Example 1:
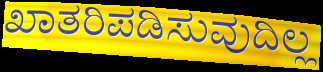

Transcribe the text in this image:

ಖಾತರಿಪಡಿಸುವುದಿಲ್ಲ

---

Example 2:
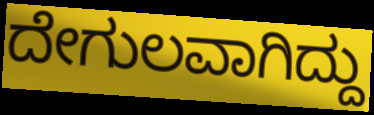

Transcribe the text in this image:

ದೇಗುಲವಾಗಿದ್ದು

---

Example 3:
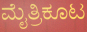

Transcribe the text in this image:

ಮೈತ್ರಿಕೂಟ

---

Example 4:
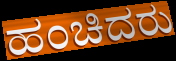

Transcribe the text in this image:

ಹಂಚಿದರು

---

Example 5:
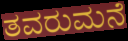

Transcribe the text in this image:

ತವರುಮನೆ